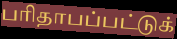
பரிதாபப்பட்டுக்